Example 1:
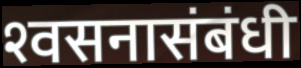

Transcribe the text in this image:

श्वसनासंबंधी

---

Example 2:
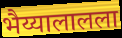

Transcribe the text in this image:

भैय्यालालला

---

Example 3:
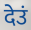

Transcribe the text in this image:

देउं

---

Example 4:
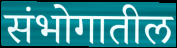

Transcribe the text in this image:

संभोगातील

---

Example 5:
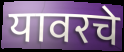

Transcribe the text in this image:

यावरचे